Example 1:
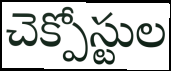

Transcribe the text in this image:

చెక్పోస్టుల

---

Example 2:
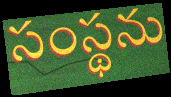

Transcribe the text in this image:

సంస్థను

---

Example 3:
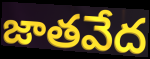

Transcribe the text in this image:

జాతవేద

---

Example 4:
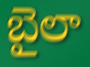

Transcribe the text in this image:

బైలా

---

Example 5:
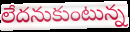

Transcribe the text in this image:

లేదనుకుంటున్న